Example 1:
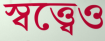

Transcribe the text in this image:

স্বত্ত্বেও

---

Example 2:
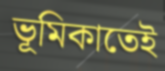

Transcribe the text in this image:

ভূমিকাতেই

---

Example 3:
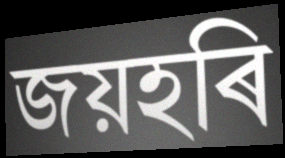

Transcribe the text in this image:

জয়হৰি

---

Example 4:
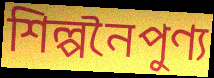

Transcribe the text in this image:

শিল্পনৈপুণ্য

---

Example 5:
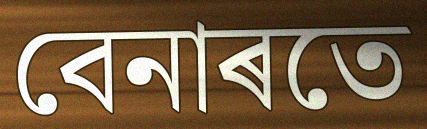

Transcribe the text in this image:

বেনাৰতে